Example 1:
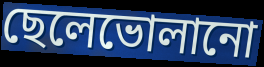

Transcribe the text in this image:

ছেলেভোলানো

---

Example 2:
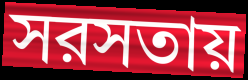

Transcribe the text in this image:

সরসতায়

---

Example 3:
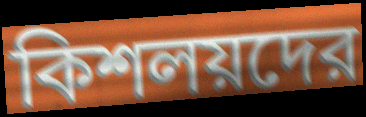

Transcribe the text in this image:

কিশলয়দের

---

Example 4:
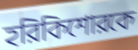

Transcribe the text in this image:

হরিকিশোরকে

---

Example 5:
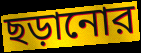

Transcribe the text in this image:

ছড়ানোর